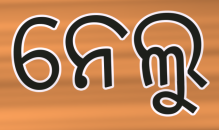
ନେଲୁ